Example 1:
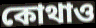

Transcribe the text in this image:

কোথাও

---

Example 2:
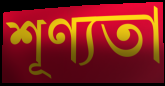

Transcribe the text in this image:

শূণ্যতা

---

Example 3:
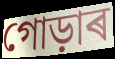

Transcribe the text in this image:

গোড়াৰ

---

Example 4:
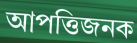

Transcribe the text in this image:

আপত্তিজনক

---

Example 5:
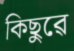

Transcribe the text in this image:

কিছুৱে